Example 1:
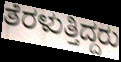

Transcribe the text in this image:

ತೆರಳುತ್ತಿದ್ದರು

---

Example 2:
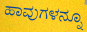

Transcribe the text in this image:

ಹಾವುಗಳನ್ನೂ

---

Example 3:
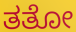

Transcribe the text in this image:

ತತೋ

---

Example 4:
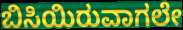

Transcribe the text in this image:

ಬಿಸಿಯಿರುವಾಗಲೇ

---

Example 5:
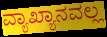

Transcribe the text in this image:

ವ್ಯಾಖ್ಯಾನವಲ್ಲ